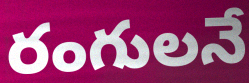
రంగులనే